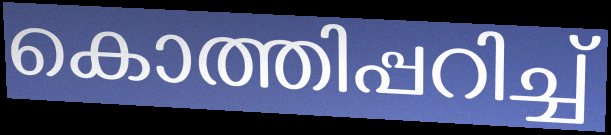
കൊത്തിപ്പറിച്ച്